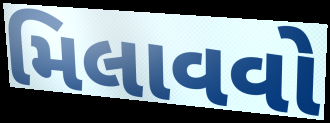
મિલાવવો